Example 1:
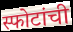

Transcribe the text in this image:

स्फोटांची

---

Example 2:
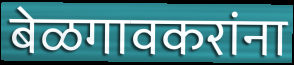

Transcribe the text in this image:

बेळगावकरांना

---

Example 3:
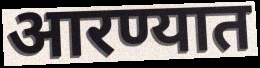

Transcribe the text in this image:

आरण्यात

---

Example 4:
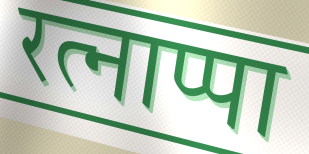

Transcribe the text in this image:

रत्नाप्पा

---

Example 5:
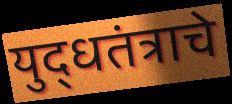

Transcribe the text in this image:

युद्धतंत्राचे